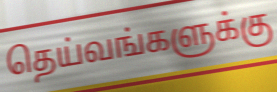
தெய்வங்களுக்கு